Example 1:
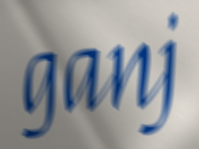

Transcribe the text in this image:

ganj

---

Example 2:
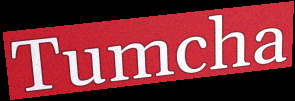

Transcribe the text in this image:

Tumcha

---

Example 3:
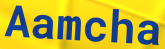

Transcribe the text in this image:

Aamcha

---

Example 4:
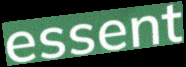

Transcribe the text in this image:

essent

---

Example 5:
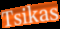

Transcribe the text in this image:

Tsikas